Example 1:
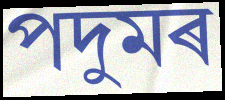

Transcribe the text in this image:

পদুমৰ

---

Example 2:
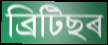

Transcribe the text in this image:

ব্ৰিটিছৰ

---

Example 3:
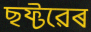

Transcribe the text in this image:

ছফ্টৱেৰ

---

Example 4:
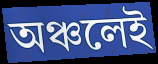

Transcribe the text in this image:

অঞ্চলেই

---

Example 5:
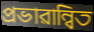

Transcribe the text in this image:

প্ৰভাৱান্বিত